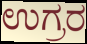
ಉಗ್ರರ